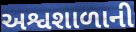
અશ્વશાળાની